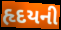
હૃદયની